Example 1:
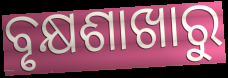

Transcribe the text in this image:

ବୃକ୍ଷଶାଖାରୁ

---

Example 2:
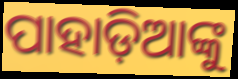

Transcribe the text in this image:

ପାହାଡ଼ିଆଙ୍କୁ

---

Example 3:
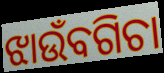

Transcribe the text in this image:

ଝାଉଁବଗିଚା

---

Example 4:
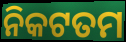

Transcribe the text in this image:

ନିକଟତମ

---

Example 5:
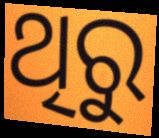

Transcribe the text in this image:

ଥିରୁ